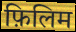
फ़िलिम